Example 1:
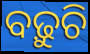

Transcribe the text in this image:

ବଢ଼ୁଚି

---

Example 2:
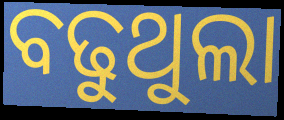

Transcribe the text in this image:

ବଢୁଥୁଲା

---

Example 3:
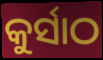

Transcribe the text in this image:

କୁର୍ସାଠ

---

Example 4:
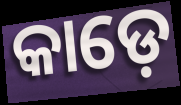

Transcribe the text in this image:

କାଡ଼େ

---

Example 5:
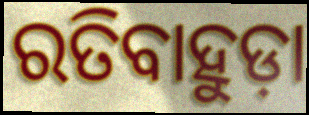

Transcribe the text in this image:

ରତିବାହୁଡ଼ା